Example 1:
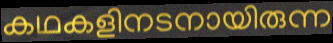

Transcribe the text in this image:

കഥകളിനടനായിരുന്ന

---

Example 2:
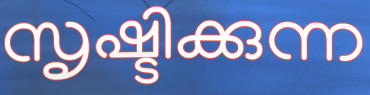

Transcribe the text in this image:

സൃഷ്ടിക്കുന്ന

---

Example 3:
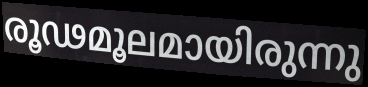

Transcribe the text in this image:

രൂഢമൂലമായിരുന്നു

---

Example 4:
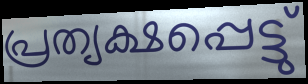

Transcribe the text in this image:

പ്രത്യക്ഷപ്പെട്ടു്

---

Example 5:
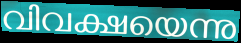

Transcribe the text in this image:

വിവക്ഷയെന്നു